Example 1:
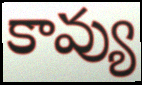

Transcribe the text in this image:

కావ్యు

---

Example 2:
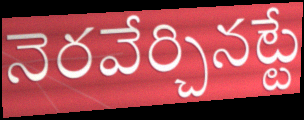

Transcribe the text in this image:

నెరవేర్చినట్టే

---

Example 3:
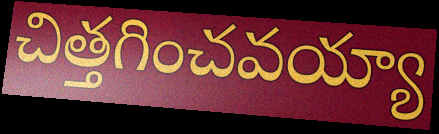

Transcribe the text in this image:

చిత్తగించవయ్యా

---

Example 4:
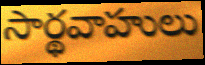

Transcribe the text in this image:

సార్థవాహులు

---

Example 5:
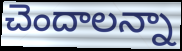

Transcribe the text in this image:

చెందాలన్నా